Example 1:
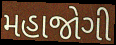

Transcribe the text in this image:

મહાજોગી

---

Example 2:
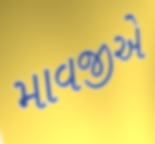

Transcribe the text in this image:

માવજીએ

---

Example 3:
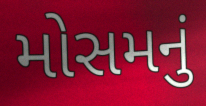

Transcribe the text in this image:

મોસમનું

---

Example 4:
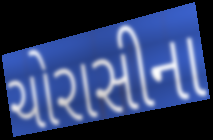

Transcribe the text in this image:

ચોરાસીના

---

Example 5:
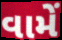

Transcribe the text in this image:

વામેં